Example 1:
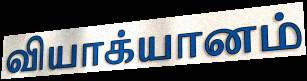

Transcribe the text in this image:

வியாக்யானம்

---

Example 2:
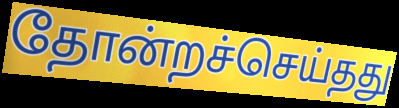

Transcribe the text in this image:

தோன்றச்செய்தது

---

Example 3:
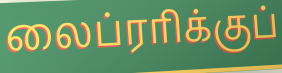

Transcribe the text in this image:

லைப்ரரிக்குப்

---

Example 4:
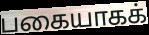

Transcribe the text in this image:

பகையாகக்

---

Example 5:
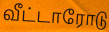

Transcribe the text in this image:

வீட்டாரோடு